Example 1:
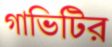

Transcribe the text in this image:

গাভিটির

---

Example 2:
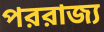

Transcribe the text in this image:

পররাজ্য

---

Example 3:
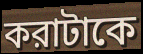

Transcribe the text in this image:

করাটাকে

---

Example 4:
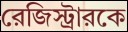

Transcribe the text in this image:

রেজিস্ট্রারকে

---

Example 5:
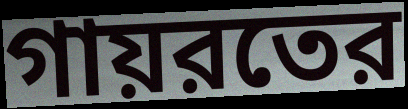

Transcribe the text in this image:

গায়রতের